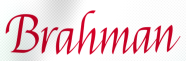
Brahman